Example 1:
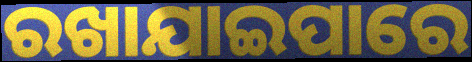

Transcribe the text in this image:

ରଖାଯାଇପାରେ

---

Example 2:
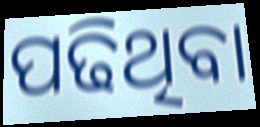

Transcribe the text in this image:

ପଢିଥିବା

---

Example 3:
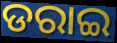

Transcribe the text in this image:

ଡରାଇ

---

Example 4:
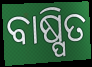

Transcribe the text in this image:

ବାଷ୍ପିତ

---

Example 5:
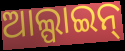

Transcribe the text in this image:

ଆଲ୍ପାଇନ୍